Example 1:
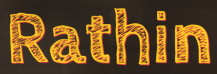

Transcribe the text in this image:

Rathin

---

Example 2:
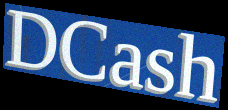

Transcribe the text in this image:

DCash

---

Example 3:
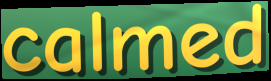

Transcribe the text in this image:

calmed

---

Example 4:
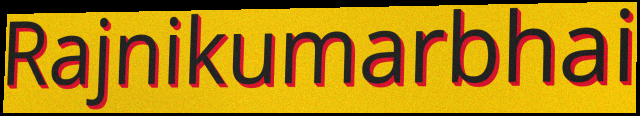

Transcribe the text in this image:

Rajnikumarbhai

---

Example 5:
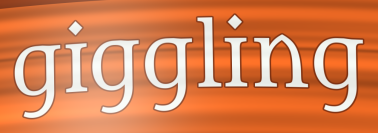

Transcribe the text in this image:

giggling